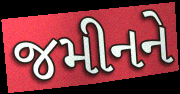
જમીનને